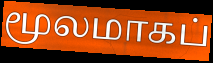
மூலமாகப்